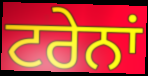
ਟਰੇਨਾਂ